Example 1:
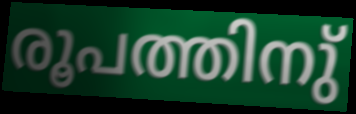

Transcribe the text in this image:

രൂപത്തിനു്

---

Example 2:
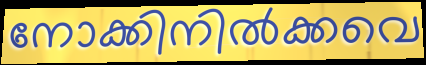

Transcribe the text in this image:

നോക്കിനിൽക്കവെ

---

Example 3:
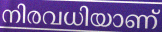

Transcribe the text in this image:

നിരവധിയാണ്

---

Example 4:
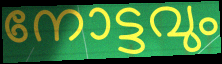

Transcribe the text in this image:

നോട്ടവും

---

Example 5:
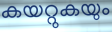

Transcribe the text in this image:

കയറ്റുകയും